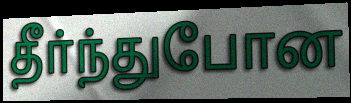
தீர்ந்துபோன